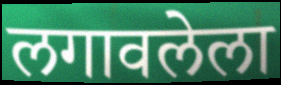
लगावलेला